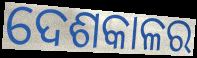
ଦେଶକାଳର